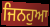
ਜਿਨਹੁਆ